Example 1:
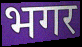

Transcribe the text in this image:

भगर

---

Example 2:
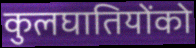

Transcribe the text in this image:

कुलघातियोंको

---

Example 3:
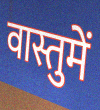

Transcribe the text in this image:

वास्तुमें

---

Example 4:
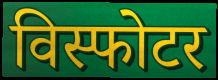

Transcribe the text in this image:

विस्फोटर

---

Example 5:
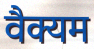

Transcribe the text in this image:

वैक्यम